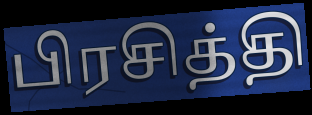
பிரசித்தி